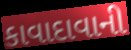
કાવાદાવાની